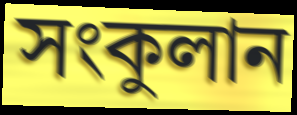
সংকুলান